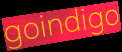
goindigo